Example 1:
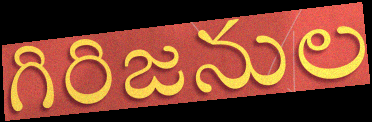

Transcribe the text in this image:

గిరిజనుల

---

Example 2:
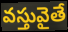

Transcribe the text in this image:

వస్తువైతే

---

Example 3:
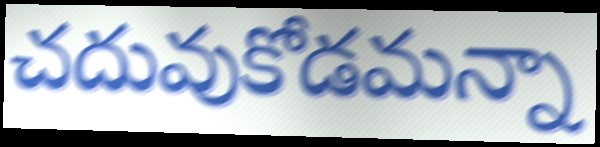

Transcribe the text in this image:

చదువుకోడమన్నా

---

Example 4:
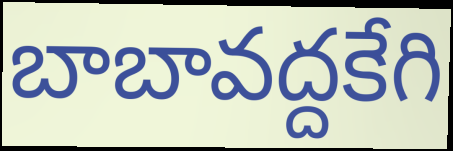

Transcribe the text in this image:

బాబావద్దకేగి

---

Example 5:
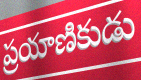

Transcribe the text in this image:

ప్రయాణికుడు